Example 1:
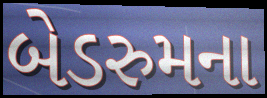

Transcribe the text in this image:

બેડરુમના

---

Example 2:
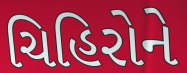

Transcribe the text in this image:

ચિહિરોને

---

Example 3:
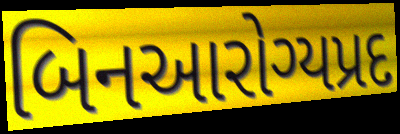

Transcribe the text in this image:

બિનઆરોગ્યપ્રદ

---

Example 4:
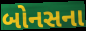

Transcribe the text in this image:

બોનસના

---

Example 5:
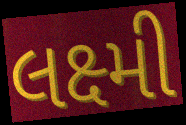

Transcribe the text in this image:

લક્ષ્મી